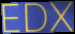
EDX